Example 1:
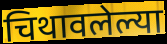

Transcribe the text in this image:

चिथावलेल्या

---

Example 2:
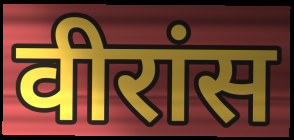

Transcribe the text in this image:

वीरांस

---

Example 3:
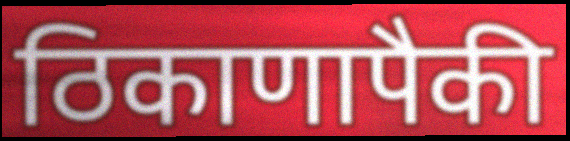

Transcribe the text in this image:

ठिकाणापैकी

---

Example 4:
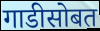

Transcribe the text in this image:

गाडीसोबत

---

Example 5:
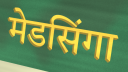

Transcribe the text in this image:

मेडसिंगा